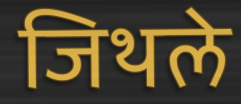
जिथले